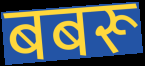
बबरू